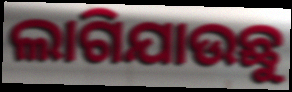
ଲାଗିଯାଉଛୁ